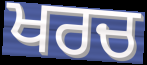
ਖਰਚ